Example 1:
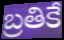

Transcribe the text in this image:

బ్రతికే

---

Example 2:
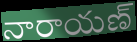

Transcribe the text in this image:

నారాయణ్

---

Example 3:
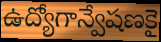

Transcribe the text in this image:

ఉద్యోగాన్వేషణకై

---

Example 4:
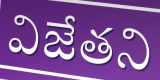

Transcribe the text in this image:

విజేతని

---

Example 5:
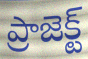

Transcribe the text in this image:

ప్రాజెక్ట్